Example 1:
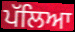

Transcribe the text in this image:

ਪੱਲਿਆ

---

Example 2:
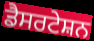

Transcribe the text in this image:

ਡੈਸਰਟੇਸ਼ਨ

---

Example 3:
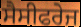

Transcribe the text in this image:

ਸੈਸੀਫਰੇਜ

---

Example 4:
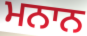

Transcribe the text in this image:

ਮਨਾਨ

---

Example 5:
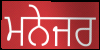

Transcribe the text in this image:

ਮਨੇਜਰ